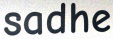
sadhe